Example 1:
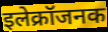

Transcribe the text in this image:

इलेक्रॉजनक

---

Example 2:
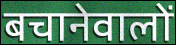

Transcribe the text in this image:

बचानेवालों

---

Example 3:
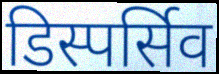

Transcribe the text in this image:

डिस्पर्सिव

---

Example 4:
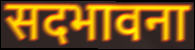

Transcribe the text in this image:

सदभावना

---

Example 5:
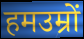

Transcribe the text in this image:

हमउम्रों